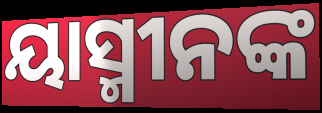
ୟାସ୍ମୀନଙ୍କ